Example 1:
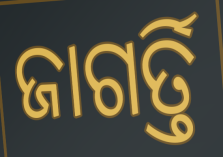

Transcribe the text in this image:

ଜାଗର୍ତ୍ତି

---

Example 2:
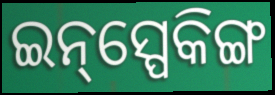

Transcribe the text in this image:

ଇନ୍‌ସ୍ପେକିଙ୍ଗ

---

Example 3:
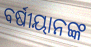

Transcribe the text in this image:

ବର୍ଷୀୟାନଙ୍କ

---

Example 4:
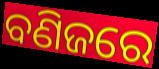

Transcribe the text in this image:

ବଣିଜରେ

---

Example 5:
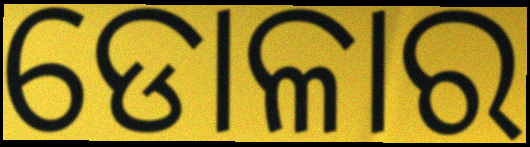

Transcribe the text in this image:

ଡୋଳାର